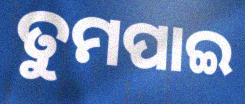
ତୁମପାଇ